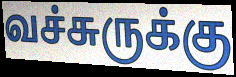
வச்சுருக்கு